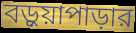
বড়ুয়াপাড়ার